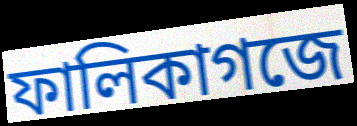
ফালিকাগজে